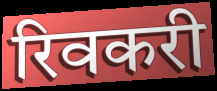
रिवकरी